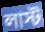
লাস্ট